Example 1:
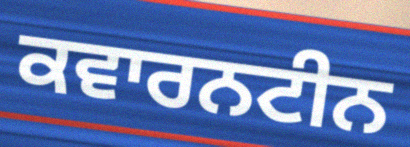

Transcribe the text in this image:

ਕਵਾਰਨਟੀਨ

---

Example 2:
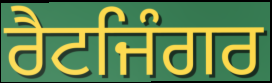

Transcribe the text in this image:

ਰੈਟਜਿੰਗਰ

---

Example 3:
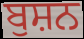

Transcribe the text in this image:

ਬੁਸ਼ਨ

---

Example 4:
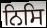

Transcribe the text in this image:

ਨਿਸਿ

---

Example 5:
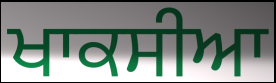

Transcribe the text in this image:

ਖਾਕਸੀਆ